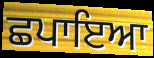
ਛਪਾਇਆ